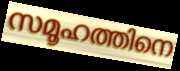
സമൂഹത്തിനെ